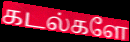
கடல்களே